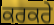
ਕਰਕਰੇ